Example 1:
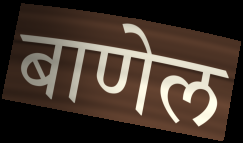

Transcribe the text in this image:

बाणेल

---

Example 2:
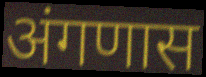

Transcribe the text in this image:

अंगणास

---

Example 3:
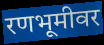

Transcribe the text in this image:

रणभूमीवर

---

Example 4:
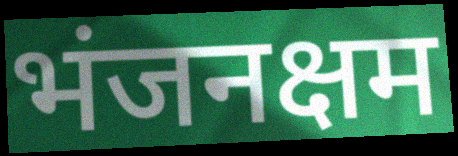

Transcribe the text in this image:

भंजनक्षम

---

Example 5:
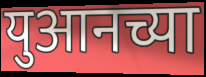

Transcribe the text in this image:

युआनच्या